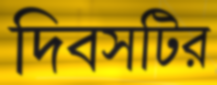
দিবসটির